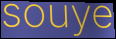
souye